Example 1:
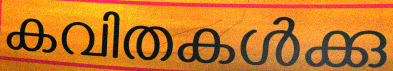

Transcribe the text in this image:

കവിതകൾക്കു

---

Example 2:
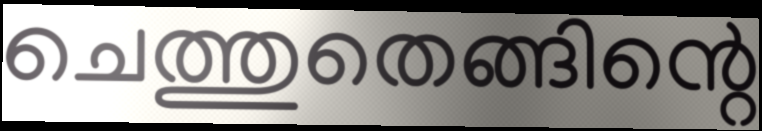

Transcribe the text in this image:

ചെത്തുതെങ്ങിന്റെ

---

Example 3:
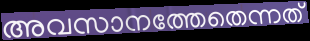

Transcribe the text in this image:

അവസാനത്തേതെന്നത്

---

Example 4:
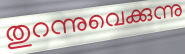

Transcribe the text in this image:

തുറന്നുവെക്കുന്നു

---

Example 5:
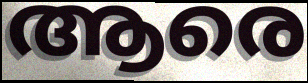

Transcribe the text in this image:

ആരെ